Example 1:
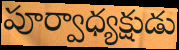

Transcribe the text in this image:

పూర్వాధ్యక్షుడు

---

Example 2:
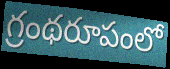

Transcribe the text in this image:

గ్రంథరూపంలో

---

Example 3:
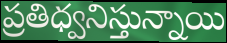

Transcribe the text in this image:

ప్రతిధ్వనిస్తున్నాయి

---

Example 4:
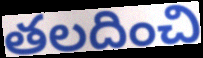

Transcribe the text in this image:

తలదించి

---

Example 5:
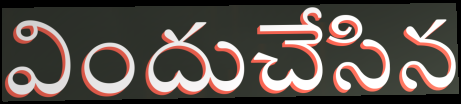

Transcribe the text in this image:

విందుచేసిన